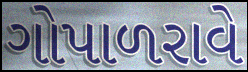
ગોપાળરાવે